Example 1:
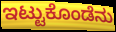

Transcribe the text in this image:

ಇಟ್ಟುಕೊಂಡೆನು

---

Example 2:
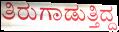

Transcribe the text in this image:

ತಿರುಗಾಡುತ್ತಿದ್ದ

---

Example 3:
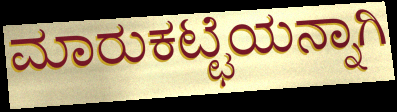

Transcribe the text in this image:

ಮಾರುಕಟ್ಟೆಯನ್ನಾಗಿ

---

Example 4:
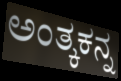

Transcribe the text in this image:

ಅಂತ್ಕಕನ್ನ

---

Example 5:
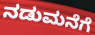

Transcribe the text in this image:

ನಡುಮನೆಗೆ